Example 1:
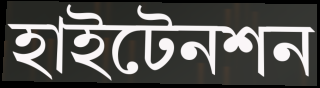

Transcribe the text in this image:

হাইটেনশন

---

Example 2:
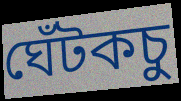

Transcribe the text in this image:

ঘেঁটকচু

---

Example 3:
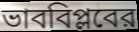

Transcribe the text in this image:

ভাববিপ্লবের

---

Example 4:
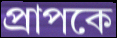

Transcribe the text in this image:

প্রাপকে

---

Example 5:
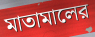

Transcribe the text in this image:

মাতামালের